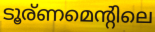
ടൂര്ണമെന്റിലെ